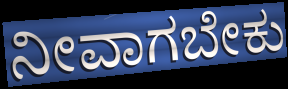
ನೀವಾಗಬೇಕು